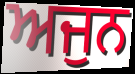
ਅਜੁਨ